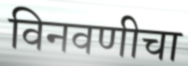
विनवणीचा